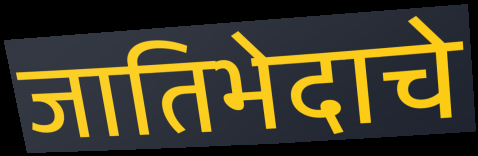
जातिभेदाचे